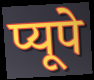
प्यूपे